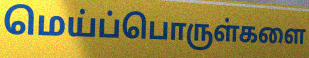
மெய்ப்பொருள்களை